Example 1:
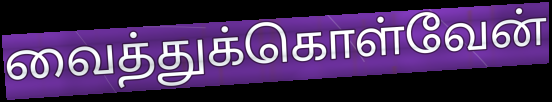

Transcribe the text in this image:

வைத்துக்கொள்வேன்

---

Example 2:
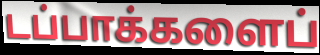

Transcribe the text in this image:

டப்பாக்களைப்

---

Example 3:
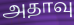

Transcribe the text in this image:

அதாவு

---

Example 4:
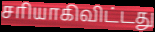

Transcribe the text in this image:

சரியாகிவிட்டது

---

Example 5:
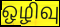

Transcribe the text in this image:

ஒழிவு